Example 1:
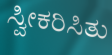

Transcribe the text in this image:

ಸ್ವೀಕರಿಸಿತು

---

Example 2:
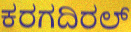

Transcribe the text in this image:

ಕರಗದಿರಲ್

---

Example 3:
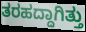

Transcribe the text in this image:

ತರಹದ್ದಾಗಿತ್ತು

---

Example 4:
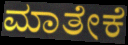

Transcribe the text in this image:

ಮಾತೇಕೆ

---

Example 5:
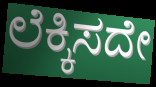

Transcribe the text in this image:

ಲೆಕ್ಕಿಸದೇ